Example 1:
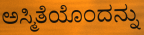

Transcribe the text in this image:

ಅಸ್ಮಿತೆಯೊಂದನ್ನು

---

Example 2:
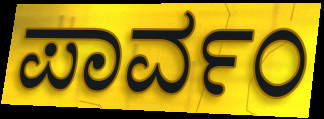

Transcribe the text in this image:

ಪಾರ್ವಂ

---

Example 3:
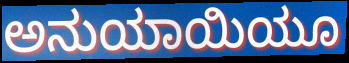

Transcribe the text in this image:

ಅನುಯಾಯಿಯೂ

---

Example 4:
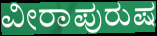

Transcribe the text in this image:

ವೀರಾಪುರುಷ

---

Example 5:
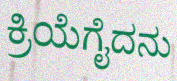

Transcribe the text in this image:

ಕ್ರಿಯೆಗೈದನು